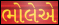
ભોલેએ